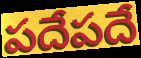
పదేపదే